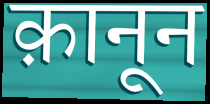
क़ानून